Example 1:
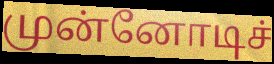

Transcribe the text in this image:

முன்னோடிச்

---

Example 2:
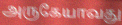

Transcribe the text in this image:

அருகேயாவது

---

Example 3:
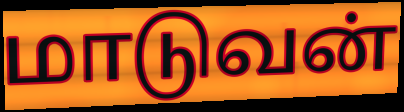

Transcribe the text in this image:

மாடுவன்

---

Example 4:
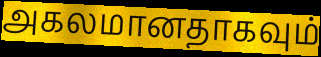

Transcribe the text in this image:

அகலமானதாகவும்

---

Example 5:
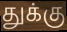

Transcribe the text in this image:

துக்கு